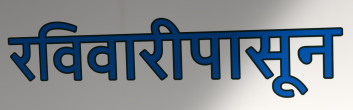
रविवारीपासून